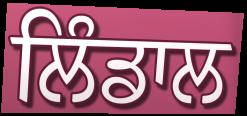
ਲਿੰਡਾਲ